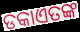
ଡକାଏତଙ୍କ